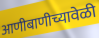
आणीबाणीच्यावेळी